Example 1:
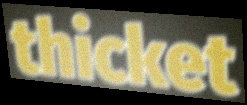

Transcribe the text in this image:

thicket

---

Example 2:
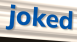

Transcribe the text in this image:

joked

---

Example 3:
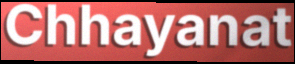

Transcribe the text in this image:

Chhayanat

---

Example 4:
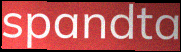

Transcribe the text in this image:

spandta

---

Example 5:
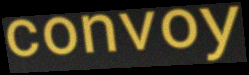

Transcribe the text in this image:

convoy